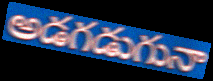
అడగడుగునా